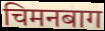
चिमनबाग